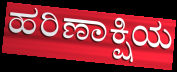
ಹರಿಣಾಕ್ಷಿಯ